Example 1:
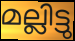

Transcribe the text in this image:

മല്ലിട്ടു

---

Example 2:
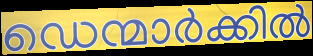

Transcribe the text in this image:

ഡെന്മാർക്കിൽ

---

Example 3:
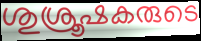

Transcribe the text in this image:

ശുശ്രൂഷകരുടെ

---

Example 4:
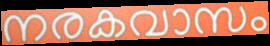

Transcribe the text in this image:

നരകവാസം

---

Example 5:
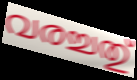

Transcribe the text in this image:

വരച്ചതു്